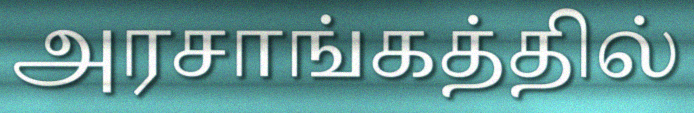
அரசாங்கத்தில்